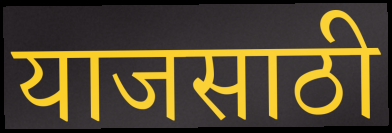
याजसाठी